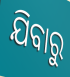
ଯିବାରୁ